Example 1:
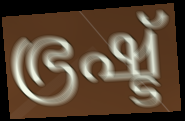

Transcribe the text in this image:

ഭ്രഷ്ട്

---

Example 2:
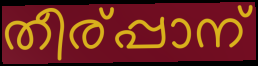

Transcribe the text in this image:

തീര്പ്പാന്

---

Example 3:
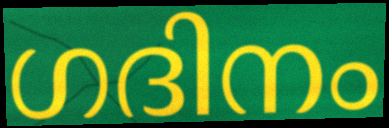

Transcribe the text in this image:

ഗദിനം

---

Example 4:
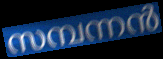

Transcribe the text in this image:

സമ്പന്നൻ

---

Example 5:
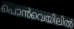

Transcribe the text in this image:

പൊൻവെയിലിൽ